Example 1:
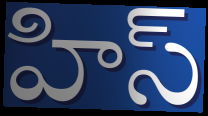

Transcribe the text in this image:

హిస్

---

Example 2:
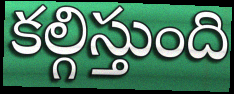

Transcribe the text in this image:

కల్గిస్తుంది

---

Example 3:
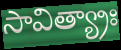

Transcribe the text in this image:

సావిత్య్రాః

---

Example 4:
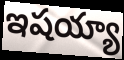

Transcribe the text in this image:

ఇషయ్యా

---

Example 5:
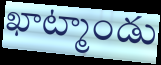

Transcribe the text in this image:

ఖాట్మాండు